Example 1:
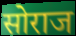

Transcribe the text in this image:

सोराज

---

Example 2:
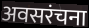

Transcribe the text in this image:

अवसरंचना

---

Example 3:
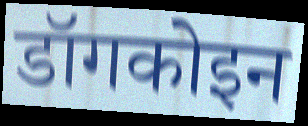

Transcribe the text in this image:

डॉगकोइन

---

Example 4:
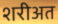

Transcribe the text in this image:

शरीअत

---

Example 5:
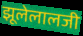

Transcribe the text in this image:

झूलेलालजी